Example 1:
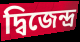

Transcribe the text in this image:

দ্বিজেন্দ্র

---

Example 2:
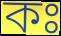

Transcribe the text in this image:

কঃ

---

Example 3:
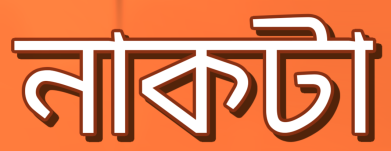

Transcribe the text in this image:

নাকটা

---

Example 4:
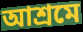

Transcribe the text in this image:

আশ্রমে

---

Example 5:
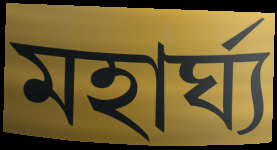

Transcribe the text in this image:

মহার্ঘ্য